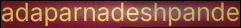
adaparnadeshpande